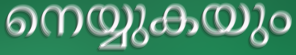
നെയ്യുകയും